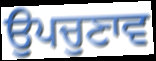
ਉਪਚੁਣਾਵ